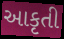
આકૃતી